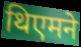
थिएमने